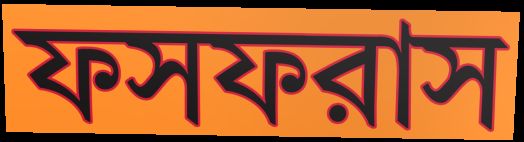
ফসফরাস